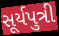
સૂર્યપુત્રી